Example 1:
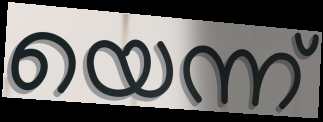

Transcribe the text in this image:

യെന്ന്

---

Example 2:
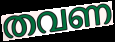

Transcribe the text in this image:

തവണ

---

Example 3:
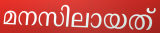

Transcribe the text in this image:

മനസിലായത്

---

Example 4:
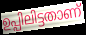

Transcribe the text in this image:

ഉപ്പിലിട്ടതാണ്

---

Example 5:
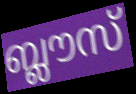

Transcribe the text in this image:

ബ്ലൗസ്